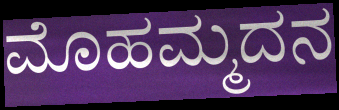
ಮೊಹಮ್ಮದನ